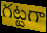
గట్టగా